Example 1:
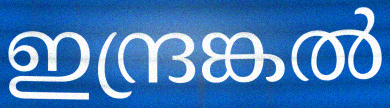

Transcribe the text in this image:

ഇന്ദ്രങ്കൽ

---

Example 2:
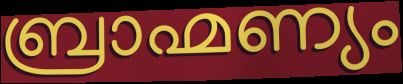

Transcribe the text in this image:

ബ്രാഹ്മണ്യം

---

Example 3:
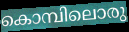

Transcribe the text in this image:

കൊമ്പിലൊരു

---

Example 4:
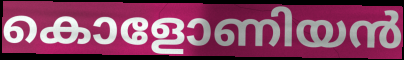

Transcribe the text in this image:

കൊളോണിയൻ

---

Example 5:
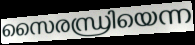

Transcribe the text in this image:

സൈരന്ധ്രിയെന്ന